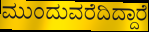
ಮುಂದುವರೆದಿದ್ದಾರೆ